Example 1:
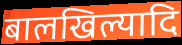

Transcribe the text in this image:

बालखिल्यादि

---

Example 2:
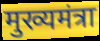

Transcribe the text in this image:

मुख्यमंत्रा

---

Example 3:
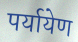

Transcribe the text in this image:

पर्यायेण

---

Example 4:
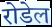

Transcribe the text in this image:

रोडेल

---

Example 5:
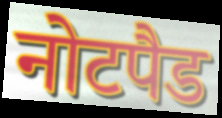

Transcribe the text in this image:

नोटपैड